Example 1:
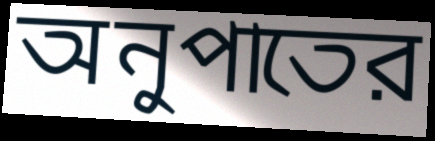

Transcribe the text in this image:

অনুপাতের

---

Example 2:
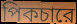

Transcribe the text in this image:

পিকচারে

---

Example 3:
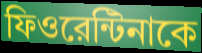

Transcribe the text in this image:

ফিওরেন্টিনাকে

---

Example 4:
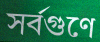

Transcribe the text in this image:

সর্বগুণে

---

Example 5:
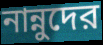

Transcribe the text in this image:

নান্নুদের